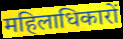
महिलाधिकारों